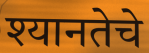
श्यानतेचे